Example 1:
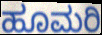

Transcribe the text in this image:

ಹೂಮರಿ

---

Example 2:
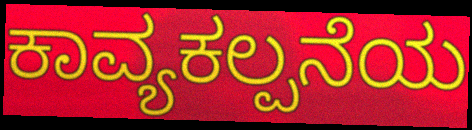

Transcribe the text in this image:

ಕಾವ್ಯಕಲ್ಪನೆಯ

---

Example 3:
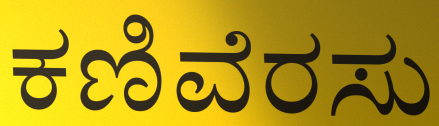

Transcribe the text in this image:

ಕಣಿವೆರಸು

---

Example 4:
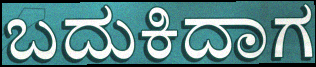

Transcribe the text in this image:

ಬದುಕಿದಾಗ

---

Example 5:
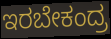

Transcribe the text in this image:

ಇರಬೇಕಂದ್ರ